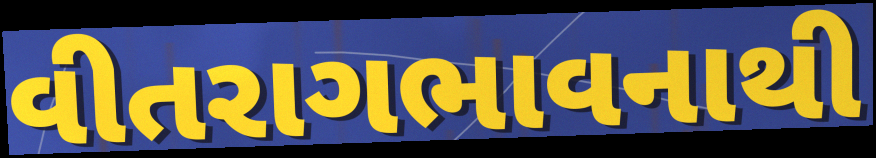
વીતરાગભાવનાથી